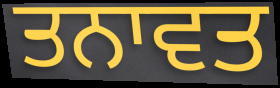
ਤਨਾਵਤ